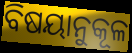
ବିଷୟାନୁକୂଳ